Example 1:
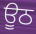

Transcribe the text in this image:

ਊਠ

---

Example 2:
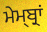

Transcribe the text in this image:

ਮੇਮ੍ਬ੍ਰਾਂ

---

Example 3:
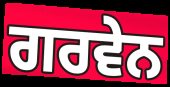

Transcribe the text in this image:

ਗਰਵੇਨ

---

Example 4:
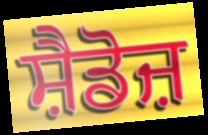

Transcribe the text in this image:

ਸ਼ੈਡੋਜ਼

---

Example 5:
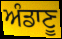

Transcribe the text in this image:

ਅੰਡਾਣੂ